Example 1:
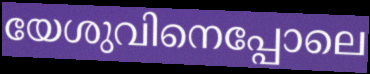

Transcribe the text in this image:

യേശുവിനെപ്പോലെ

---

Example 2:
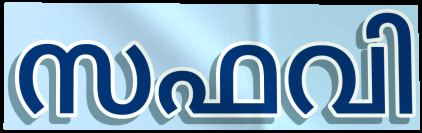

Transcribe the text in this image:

സഫവി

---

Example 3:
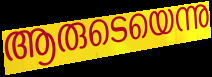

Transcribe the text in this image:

ആരുടെയെന്നു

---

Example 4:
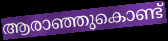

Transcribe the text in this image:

ആരാഞ്ഞുകൊണ്ട്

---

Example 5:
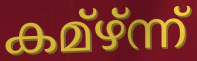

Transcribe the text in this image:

കമ്ഴ്ന്ന്